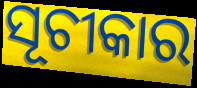
ସୂଚୀକାର